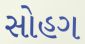
સોહગ